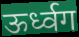
ऊर्ध्वग